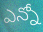
ఎన్నో